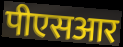
पीएसआर